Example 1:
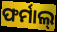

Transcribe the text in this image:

ଫର୍ମାଲ୍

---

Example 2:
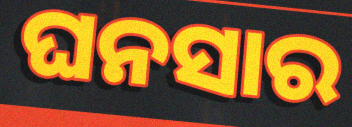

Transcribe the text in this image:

ଘନସାର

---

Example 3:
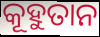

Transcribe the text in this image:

କୂହୁତାନ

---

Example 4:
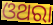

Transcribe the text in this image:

ଓଥରା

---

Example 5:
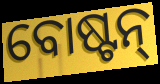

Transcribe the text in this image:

ବୋଷ୍ଟନ୍